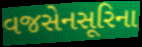
વજસેનસૂરિના